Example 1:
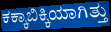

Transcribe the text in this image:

ಕಕ್ಕಾಬಿಕ್ಕಿಯಾಗಿತ್ತು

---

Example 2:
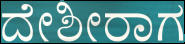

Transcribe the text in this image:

ದೇಶೀರಾಗ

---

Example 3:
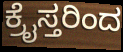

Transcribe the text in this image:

ಕ್ರೈಸ್ತರಿಂದ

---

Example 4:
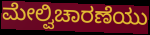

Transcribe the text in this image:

ಮೇಲ್ವಿಚಾರಣೆಯು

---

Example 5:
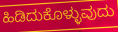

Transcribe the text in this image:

ಹಿಡಿದುಕೊಳ್ಳುವುದು